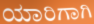
ಯಾರಿಗಾಗಿ